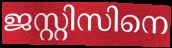
ജസ്റ്റിസിനെ